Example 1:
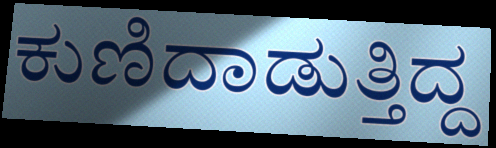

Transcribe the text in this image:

ಕುಣಿದಾಡುತ್ತಿದ್ದ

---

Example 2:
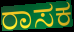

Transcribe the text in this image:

ರಾಸಕ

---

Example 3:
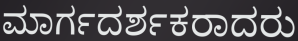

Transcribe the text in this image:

ಮಾರ್ಗದರ್ಶಕರಾದರು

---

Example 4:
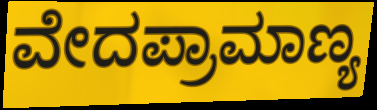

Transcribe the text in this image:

ವೇದಪ್ರಾಮಾಣ್ಯ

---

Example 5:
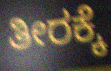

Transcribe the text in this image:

ತೀರಕ್ಕೆ